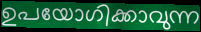
ഉപയോഗിക്കാവുന്ന